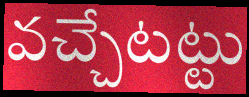
వచ్చేటట్టు